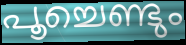
പൂച്ചെണ്ടും